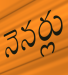
నెనర్లు